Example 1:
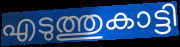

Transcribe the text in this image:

എടുത്തുകാട്ടി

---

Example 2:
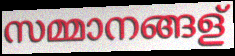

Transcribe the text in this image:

സമ്മാനങ്ങള്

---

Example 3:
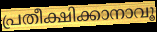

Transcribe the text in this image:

പ്രതീക്ഷിക്കാനാവൂ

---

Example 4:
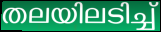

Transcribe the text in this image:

തലയിലടിച്ച്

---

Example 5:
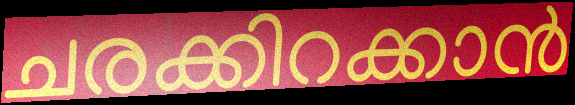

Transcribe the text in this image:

ചരക്കിറക്കാൻ